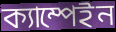
ক্যাম্পেইন